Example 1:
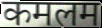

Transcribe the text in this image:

कमलम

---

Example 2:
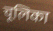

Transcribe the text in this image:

चूलिका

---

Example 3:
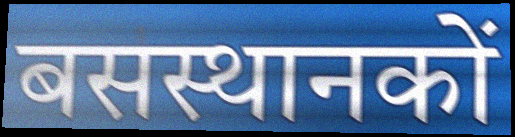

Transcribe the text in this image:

बसस्थानकों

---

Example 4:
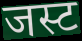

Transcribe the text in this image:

जस्ट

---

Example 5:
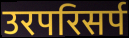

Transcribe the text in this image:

उरपरिसर्प